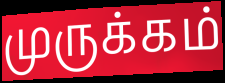
முருக்கம்